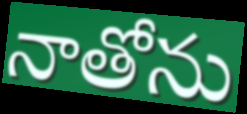
నాతోను